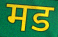
मड